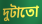
দুটাতো